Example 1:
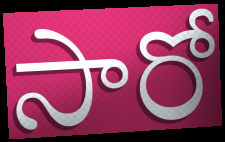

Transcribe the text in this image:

సారో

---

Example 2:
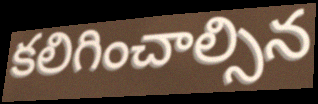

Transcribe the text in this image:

కలిగించాల్సిన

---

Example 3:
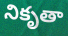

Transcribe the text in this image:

నికృతా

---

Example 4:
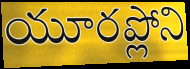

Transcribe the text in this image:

యూరప్లోని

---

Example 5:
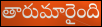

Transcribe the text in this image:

తారుమారైంది